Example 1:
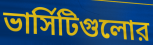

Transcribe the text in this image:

ভার্সিটিগুলোর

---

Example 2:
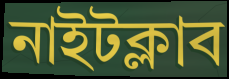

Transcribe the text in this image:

নাইটক্লাব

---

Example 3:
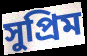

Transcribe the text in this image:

সুপ্রিম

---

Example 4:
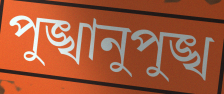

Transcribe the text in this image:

পুঙ্খানুপুঙ্খ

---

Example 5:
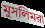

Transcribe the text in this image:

মুসলিমরা